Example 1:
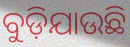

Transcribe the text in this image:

ବୁଡ଼ିଯାଉଛି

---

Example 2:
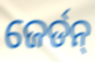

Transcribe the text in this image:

ଜେର୍ଡନ୍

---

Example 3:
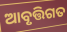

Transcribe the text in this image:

ଆବୃତ୍ତିଗତ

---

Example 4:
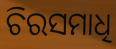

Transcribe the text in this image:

ଚିରସମାଧି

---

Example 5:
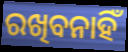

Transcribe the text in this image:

ରଖିବନାହିଁ